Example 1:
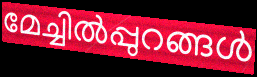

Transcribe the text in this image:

മേച്ചിൽപ്പുറങ്ങൾ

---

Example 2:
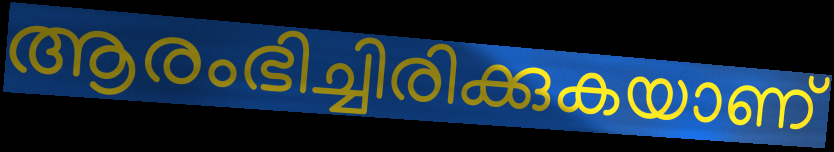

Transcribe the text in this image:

ആരംഭിച്ചിരിക്കുകയാണ്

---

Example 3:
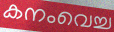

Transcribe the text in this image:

കനംവെച്ച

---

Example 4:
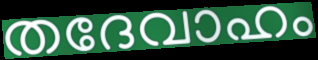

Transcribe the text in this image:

തദേവാഹം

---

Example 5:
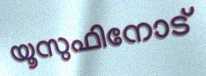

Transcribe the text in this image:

യൂസുഫിനോട്